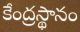
కేంద్రస్థానం